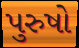
પુરુષો